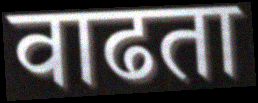
वाढता